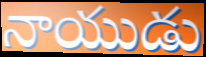
నాయుడు